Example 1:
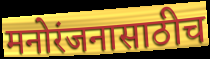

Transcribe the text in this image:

मनोरंजनासाठीच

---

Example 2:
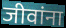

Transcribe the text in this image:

जीवांना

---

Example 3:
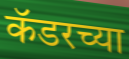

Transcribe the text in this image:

कॅडरच्या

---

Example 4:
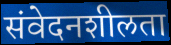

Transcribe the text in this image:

संवेदनशीलता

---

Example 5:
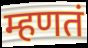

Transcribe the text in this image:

म्हणतं